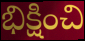
భిక్షించి